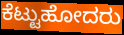
ಕೆಟ್ಟುಹೋದರು